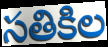
సతికిల